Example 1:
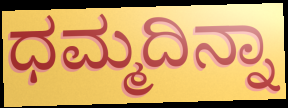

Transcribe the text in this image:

ಧಮ್ಮದಿನ್ನಾ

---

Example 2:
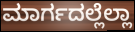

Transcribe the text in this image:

ಮಾರ್ಗದಲ್ಲೆಲ್ಲಾ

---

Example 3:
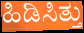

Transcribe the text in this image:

ಹಿಡಿಸಿತ್ತು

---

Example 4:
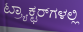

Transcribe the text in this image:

ಟ್ರ್ಯಾಕ್ಟರ್‌ಗಳಲ್ಲಿ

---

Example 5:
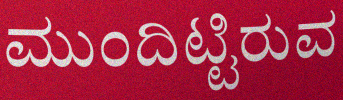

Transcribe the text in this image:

ಮುಂದಿಟ್ಟಿರುವ